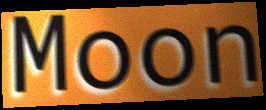
Moon